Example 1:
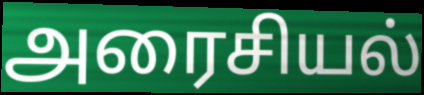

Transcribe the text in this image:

அரைசியல்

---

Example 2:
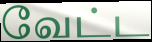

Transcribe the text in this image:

வேட்ட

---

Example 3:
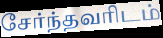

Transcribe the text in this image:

சேர்ந்தவரிடம்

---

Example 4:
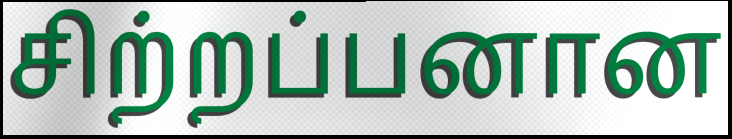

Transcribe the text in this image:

சிற்றப்பனான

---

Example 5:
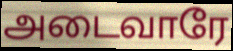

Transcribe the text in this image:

அடைவாரே